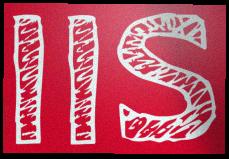
IIS